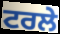
ਟਰਲੇ